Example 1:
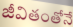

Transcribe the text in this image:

జీవితంతోనే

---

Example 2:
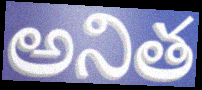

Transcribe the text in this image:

అనిత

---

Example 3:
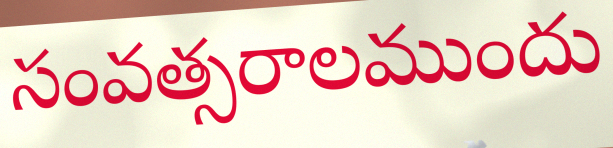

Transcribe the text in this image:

సంవత్సరాలముందు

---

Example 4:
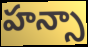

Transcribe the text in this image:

హన్సా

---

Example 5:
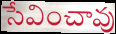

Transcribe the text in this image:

సేవించావు